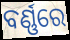
ବର୍ଣ୍ଣରେ